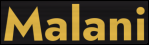
Malani